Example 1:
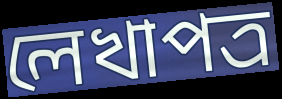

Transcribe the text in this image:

লেখাপত্র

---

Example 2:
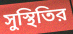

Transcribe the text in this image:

সুস্থিতির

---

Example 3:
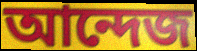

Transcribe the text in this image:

আন্দেজ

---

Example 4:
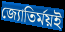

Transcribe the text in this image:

জ্যোতির্ময়ই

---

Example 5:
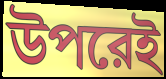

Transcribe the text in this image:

উপরেই